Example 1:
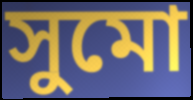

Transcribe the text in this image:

সুমো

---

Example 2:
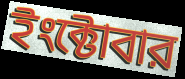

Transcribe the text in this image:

ইংক্টোবার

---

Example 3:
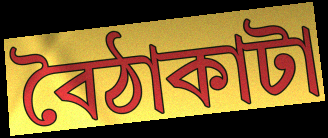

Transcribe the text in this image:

বৈঠাকাটা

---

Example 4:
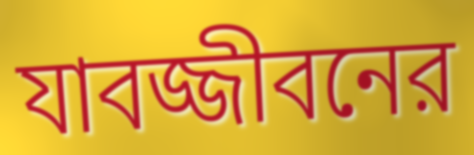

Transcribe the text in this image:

যাবজ্জীবনের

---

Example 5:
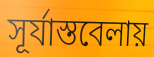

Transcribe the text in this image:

সূর্যাস্তবেলায়